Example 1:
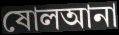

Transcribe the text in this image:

ষোলআনা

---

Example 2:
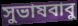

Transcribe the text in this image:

সুভাষবাবু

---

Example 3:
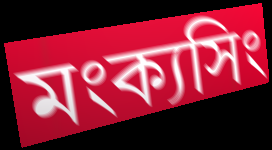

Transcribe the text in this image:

মংক্যসিং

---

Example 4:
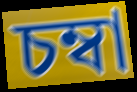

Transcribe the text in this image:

চম্বা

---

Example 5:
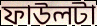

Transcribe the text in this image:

ফাউলটা